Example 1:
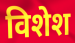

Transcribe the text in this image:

विशेश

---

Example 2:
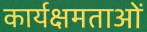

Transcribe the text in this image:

कार्यक्षमताओं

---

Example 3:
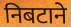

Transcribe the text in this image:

निबटाने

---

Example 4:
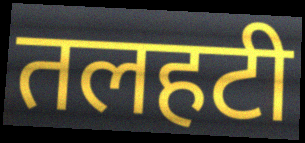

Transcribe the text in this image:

तलहटी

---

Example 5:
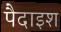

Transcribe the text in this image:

पैदाइश